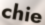
chie